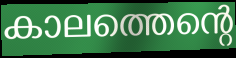
കാലത്തെന്റെ